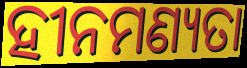
ହୀନମଣ୍ୟତା